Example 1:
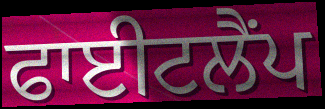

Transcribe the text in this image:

ਫਾਈਟਲੈਂਪ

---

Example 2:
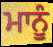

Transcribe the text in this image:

ਮਾਨੂੰ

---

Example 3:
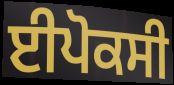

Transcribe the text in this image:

ਈਪੋਕਸੀ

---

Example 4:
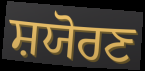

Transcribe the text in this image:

ਸ਼ਯੋਰਣ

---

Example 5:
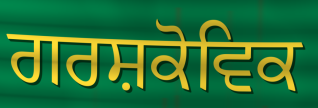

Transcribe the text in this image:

ਗਰਸ਼ਕੋਵਿਕ